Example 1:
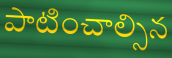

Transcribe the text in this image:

పాటించాల్సిన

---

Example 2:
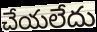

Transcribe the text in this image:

చేయలేదు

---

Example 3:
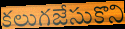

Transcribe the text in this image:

కలుగజేసుకొని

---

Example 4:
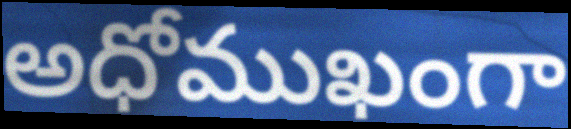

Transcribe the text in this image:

అధోముఖంగా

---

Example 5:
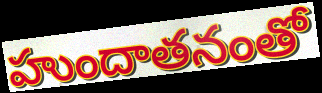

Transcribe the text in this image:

హుందాతనంతో